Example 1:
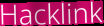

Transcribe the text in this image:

Hacklink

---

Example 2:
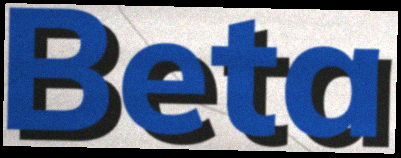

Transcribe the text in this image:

Beta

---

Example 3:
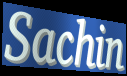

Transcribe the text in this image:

Sachin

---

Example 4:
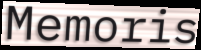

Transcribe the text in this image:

Memoris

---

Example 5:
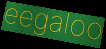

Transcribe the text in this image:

eegaloo